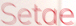
Setae